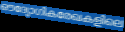
ഔദ്യോഗികരേഖകളിലെ